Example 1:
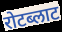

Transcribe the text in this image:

रोटब्लाट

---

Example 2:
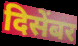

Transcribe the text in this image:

दिसेंबर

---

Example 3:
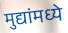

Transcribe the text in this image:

मुद्यांमध्ये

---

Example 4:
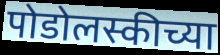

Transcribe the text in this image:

पोडोलस्कीच्या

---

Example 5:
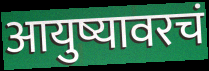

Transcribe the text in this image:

आयुष्यावरचं